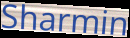
Sharmin